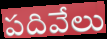
పదివేలు